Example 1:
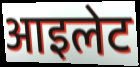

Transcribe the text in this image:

आइलेट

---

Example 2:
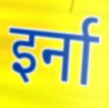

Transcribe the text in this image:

इर्ना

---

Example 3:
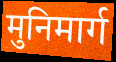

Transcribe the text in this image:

मुनिमार्ग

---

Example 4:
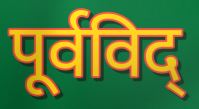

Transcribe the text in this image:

पूर्वविद्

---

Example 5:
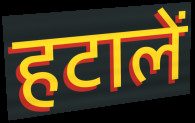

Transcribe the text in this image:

हटालें